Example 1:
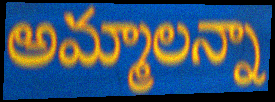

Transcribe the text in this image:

అమ్మాలన్నా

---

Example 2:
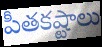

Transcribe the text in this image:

పీతకష్టాలు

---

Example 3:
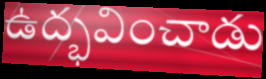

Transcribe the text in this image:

ఉద్భవించాడు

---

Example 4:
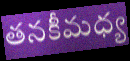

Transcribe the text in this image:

తనకీమధ్య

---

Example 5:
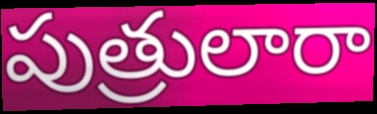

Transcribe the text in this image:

పుత్రులారా